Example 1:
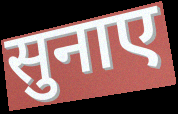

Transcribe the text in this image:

सुनाए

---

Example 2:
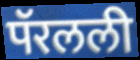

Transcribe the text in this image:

पॅरलली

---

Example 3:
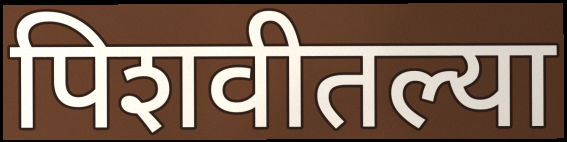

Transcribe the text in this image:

पिशवीतल्या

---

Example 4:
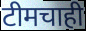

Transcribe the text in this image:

टीमचाही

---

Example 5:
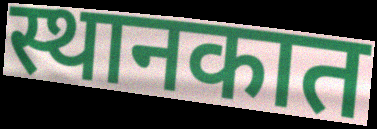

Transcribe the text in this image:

स्थानकात